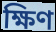
ক্ষিণ